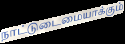
நாட்டுடைமையாக்கும்